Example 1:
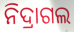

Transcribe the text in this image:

ନିଦ୍ରାଗଲ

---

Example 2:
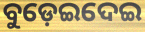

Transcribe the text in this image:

ବୁଡ଼େଇଦେଇ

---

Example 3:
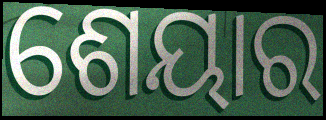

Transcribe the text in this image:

ଶେୟାର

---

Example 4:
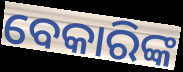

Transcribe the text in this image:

ବେକାରିଙ୍କ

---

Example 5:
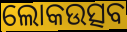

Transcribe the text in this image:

ଲୋକଉତ୍ସବ